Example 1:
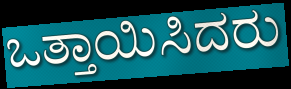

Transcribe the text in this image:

ಒತ್ತಾಯಿಸಿದರು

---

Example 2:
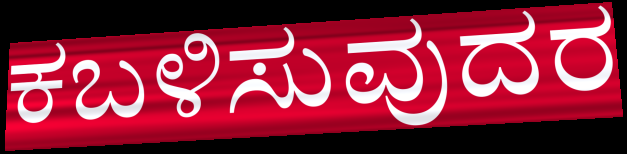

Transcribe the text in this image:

ಕಬಳಿಸುವುದರ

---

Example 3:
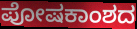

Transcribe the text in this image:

ಪೋಷಕಾಂಶದ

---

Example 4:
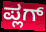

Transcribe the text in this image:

ಪ್ಲಗ್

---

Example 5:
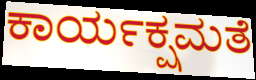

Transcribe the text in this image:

ಕಾರ್ಯಕ್ಷಮತೆ